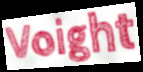
Voight